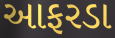
આફરડા